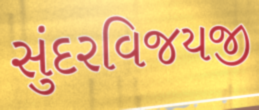
સુંદરવિજયજી